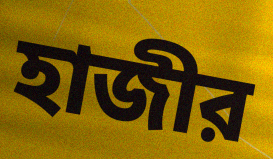
হাজীর